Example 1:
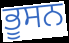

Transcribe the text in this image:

ਭੂਸਨ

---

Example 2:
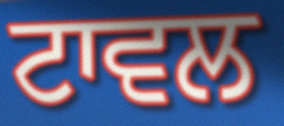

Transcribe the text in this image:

ਟਾਵਲ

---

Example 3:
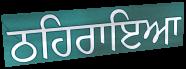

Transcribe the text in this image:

ਠਹਿਰਾਇਆ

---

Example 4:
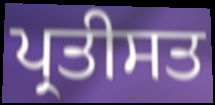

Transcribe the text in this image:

ਪ੍ਰਤੀਸਤ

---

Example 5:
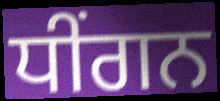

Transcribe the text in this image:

ਧੀਂਗਨ